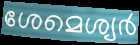
ശേമെശ്യർ